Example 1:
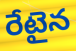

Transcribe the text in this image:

రేటైన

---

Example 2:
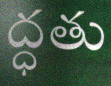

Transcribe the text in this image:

ద్ధతు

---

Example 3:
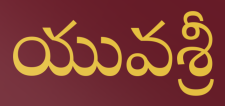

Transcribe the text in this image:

యువశ్రీ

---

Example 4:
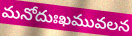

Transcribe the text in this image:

మనోదుఃఖమువలన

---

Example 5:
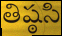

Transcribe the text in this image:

తిష్ఠసి